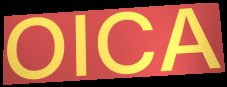
OICA